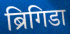
ब्रिगिडा